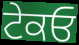
ਟੇਕਓ